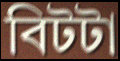
বিটটা